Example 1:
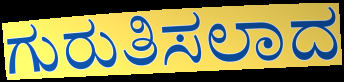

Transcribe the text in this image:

ಗುರುತಿಸಲಾದ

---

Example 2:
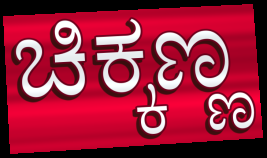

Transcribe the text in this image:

ಚಿಕ್ಕಣ್ಣ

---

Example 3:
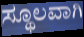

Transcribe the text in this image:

ಸ್ಥೂಲವಾಗಿ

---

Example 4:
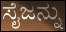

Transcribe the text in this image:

ಸೈಜನ್ನು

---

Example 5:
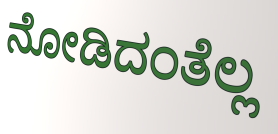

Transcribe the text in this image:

ನೋಡಿದಂತೆಲ್ಲ